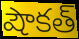
షౌకత్